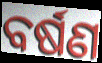
ବର୍ଷଣ